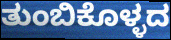
ತುಂಬಿಕೊಳ್ಳದ